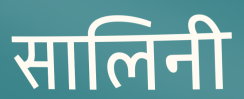
सालिनी